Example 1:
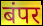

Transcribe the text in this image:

बंपर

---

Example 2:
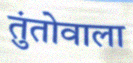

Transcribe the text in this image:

तुंतोवाला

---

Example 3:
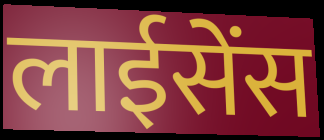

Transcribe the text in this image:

लाईसेंस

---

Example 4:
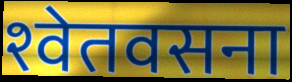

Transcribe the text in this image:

श्वेतवसना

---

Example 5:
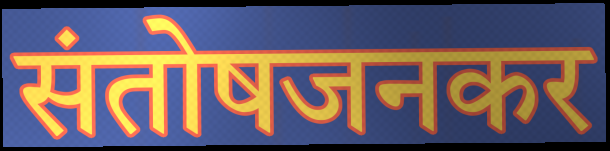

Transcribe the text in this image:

संतोषजनकर